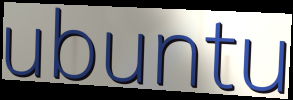
ubuntu